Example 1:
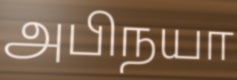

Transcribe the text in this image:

அபிநயா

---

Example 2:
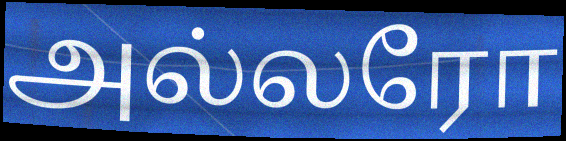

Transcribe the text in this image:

அல்லரோ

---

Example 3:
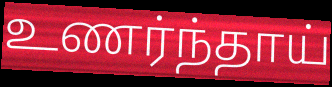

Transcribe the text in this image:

உணர்ந்தாய்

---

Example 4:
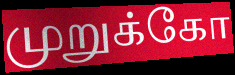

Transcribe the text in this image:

முறுக்கோ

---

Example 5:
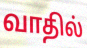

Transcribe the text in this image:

வாதில்